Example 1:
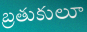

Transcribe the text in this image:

బ్రతుకులూ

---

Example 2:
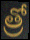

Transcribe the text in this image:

త్రో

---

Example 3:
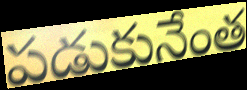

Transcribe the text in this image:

పడుకునేంత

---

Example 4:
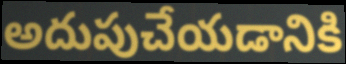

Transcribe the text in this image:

అదుపుచేయడానికి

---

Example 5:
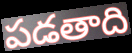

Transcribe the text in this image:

పడతాది